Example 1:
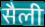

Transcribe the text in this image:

सैली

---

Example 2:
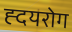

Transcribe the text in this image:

ह्दयरोग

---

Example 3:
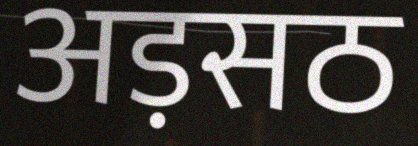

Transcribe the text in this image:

अड़सठ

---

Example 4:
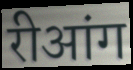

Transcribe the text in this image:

रीआंग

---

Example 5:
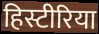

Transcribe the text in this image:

हिस्टीरिया